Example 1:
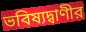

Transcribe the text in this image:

ভবিষ্যদ্বাণীর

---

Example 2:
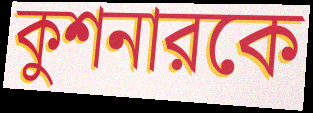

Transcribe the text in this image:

কুশনারকে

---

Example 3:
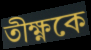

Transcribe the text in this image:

তীক্ষ্ণকে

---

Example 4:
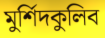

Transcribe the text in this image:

মুর্শিদকুলিব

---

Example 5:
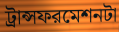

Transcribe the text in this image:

ট্রান্সফরমেশনটা